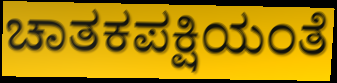
ಚಾತಕಪಕ್ಷಿಯಂತೆ